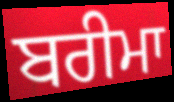
ਬਰੀਮਾ